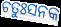
ଚତୁଃସନକ